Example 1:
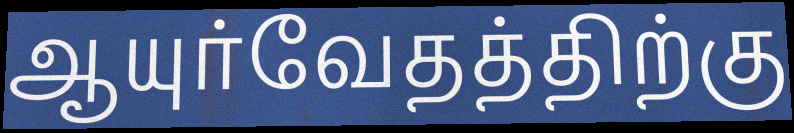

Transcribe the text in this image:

ஆயுர்வேதத்திற்கு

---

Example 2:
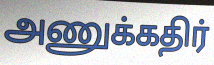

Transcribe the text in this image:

அணுக்கதிர்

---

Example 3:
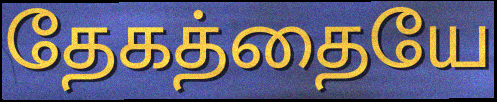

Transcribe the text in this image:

தேகத்தையே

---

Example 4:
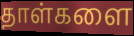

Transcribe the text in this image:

தாள்களை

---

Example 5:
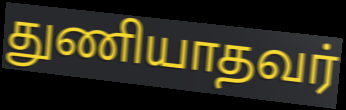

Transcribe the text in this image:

துணியாதவர்